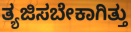
ತ್ಯಜಿಸಬೇಕಾಗಿತ್ತು